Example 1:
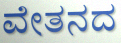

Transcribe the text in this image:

ವೇತನದ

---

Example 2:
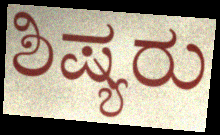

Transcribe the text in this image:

ಶಿಷ್ಯರು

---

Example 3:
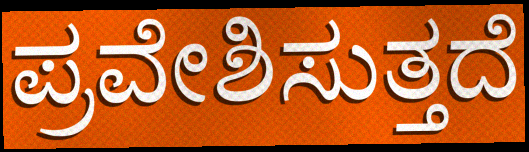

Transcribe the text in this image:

ಪ್ರವೇಶಿಸುತ್ತದೆ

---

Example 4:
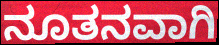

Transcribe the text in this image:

ನೂತನವಾಗಿ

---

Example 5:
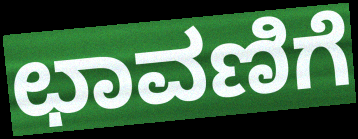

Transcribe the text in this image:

ಛಾವಣಿಗೆ